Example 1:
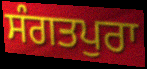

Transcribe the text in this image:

ਸੰਗਤਪੁਰਾ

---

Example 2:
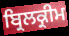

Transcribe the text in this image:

ਬ੍ਰਿਲਕ੍ਰੀਮ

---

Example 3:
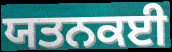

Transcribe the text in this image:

ਯਤਨਕਈ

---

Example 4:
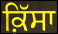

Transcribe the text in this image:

ਕ਼ਿੱਸਾ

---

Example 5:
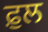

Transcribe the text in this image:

ਫ਼ੁਲ